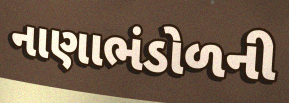
નાણાભંડોળની